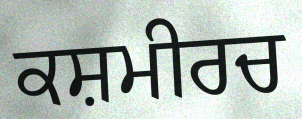
ਕਸ਼ਮੀਰਚ